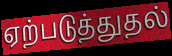
ஏற்படுத்துதல்